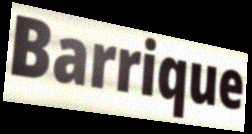
Barrique